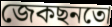
জেকছনতো